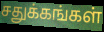
சதுக்கங்கள்